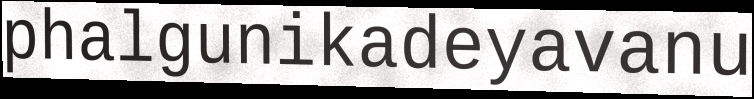
phalgunikadeyavanu